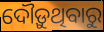
ଦୌଡ଼ୁଥିବାରୁ